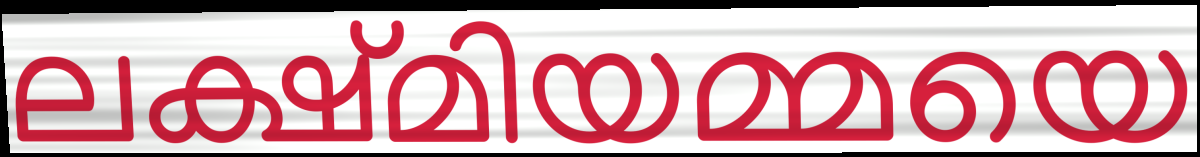
ലക്ഷ്മിയമ്മയെ